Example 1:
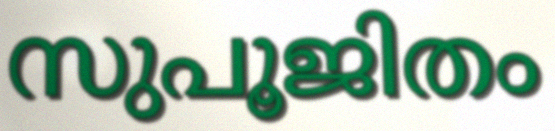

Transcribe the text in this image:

സുപൂജിതം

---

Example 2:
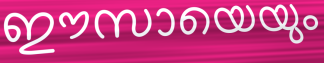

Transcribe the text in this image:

ഈസായെയും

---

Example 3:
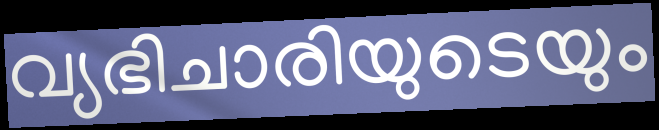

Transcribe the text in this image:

വ്യഭിചാരിയുടെയും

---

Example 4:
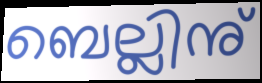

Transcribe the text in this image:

ബെല്ലിനു്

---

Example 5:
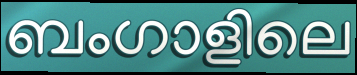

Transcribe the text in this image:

ബംഗാളിലെ